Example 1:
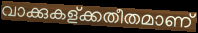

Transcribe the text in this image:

വാക്കുകള്ക്കതീതമാണ്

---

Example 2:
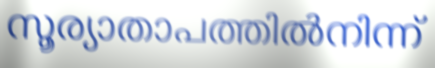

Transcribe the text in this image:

സൂര്യാതാപത്തിൽനിന്ന്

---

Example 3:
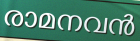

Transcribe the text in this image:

രാമനവൻ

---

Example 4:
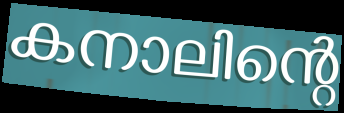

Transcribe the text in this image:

കനാലിന്റെ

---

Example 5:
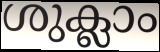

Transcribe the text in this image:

ശുക്ലാം